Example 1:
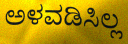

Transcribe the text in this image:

ಅಳವಡಿಸಿಲ್ಲ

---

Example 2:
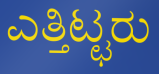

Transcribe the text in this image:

ಎತ್ತಿಟ್ಟರು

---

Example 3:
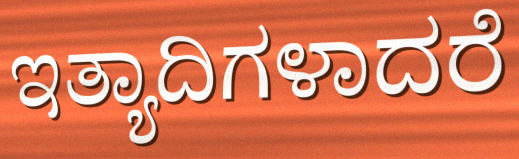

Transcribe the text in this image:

ಇತ್ಯಾದಿಗಳಾದರೆ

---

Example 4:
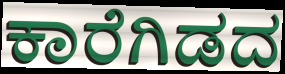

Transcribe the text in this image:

ಕಾರೆಗಿಡದ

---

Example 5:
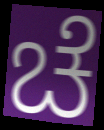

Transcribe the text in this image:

ಚೆ